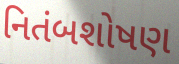
નિતંબશોષણ